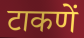
टाकणें